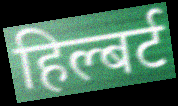
हिल्बर्ट